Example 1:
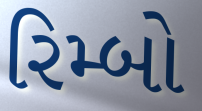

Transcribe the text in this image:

રિમ્બો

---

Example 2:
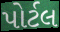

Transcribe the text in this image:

પોર્ટલ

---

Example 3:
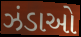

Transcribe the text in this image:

ઝંડાઓ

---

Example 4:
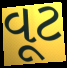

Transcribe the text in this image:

વૂટ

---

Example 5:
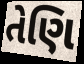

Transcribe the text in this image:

તેણિ